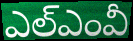
ఎల్ఎంవీ